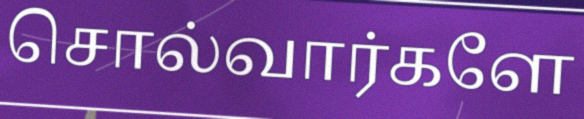
சொல்வார்களே